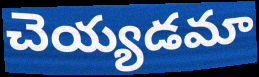
చెయ్యడమా